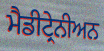
ਮੈਡੀਟ੍ਰੇਨੀਅਨ